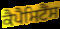
ਕੈਪੈਸਿਟੈਂਸ